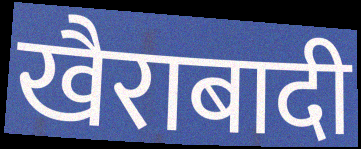
खैराबादी